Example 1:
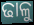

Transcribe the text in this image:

ଢାଳୁ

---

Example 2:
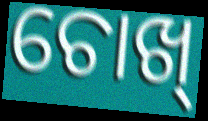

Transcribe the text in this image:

ଚୋଖ୍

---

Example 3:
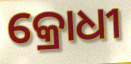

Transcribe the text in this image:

କ୍ରୋଧୀ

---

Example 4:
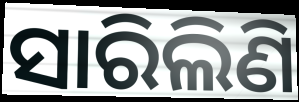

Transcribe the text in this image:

ସାରିଲିଣି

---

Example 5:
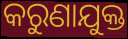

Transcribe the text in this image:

କରୁଣାଯୁକ୍ତ